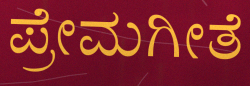
ಪ್ರೇಮಗೀತೆ